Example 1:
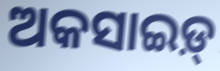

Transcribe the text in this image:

ଅକସାଇଡ଼୍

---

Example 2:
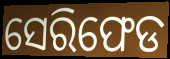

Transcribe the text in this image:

ସେରିଫେଡ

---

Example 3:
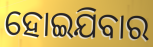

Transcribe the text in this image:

ହୋଇଯିବାର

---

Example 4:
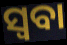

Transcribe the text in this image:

ସ୍ୱବା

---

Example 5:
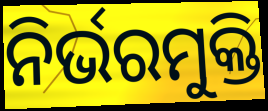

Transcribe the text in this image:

ନିର୍ଭରମୁକ୍ତି